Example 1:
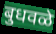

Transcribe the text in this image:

बुधवळे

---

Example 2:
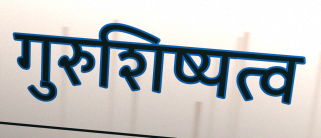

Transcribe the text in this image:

गुरुशिष्यत्व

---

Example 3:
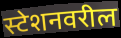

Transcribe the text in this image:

स्टेशनवरील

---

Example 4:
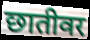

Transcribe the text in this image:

छातीवर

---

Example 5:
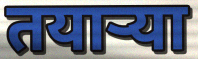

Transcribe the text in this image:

तयाऱ्या